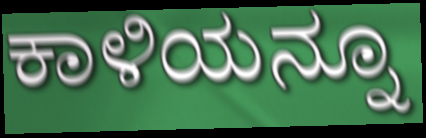
ಕಾಳಿಯನ್ನೂ